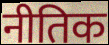
नीतिक